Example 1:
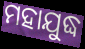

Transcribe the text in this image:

ମହାଯୁଦ୍ଧ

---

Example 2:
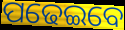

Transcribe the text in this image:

ପଢେଇବେ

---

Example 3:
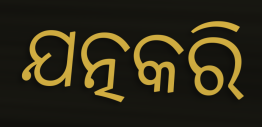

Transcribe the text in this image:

ଯତ୍ନକରି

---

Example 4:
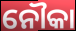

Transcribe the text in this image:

ନୌକା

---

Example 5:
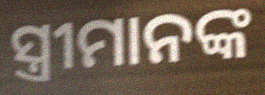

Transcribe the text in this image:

ସ୍ତ୍ରୀମାନଙ୍କ